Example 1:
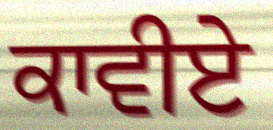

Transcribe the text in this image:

ਕਾਵੀਏ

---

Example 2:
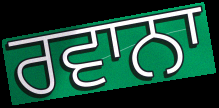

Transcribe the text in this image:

ਰਵਾਨਾ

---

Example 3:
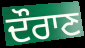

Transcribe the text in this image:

ਦੌਰਾਣ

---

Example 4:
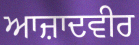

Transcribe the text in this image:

ਆਜ਼ਾਦਵੀਰ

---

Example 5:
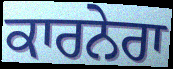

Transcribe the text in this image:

ਕਾਰਨੇਰਾ